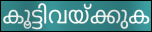
കൂട്ടിവയ്ക്കുക